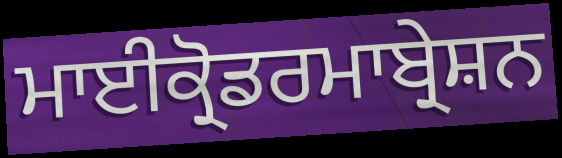
ਮਾਈਕ੍ਰੋਡਰਮਾਬ੍ਰੇਸ਼ਨ